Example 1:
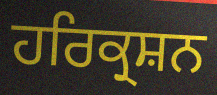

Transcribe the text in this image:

ਹਰਿਕ੍ਰਸ਼ਨ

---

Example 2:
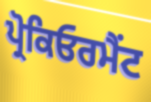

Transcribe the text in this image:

ਪ੍ਰੋਕਿਓਰਮੈਂਟ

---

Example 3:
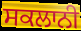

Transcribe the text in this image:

ਸਕਲਾਨੀ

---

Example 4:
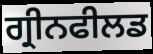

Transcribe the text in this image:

ਗ੍ਰੀਨਫੀਲਡ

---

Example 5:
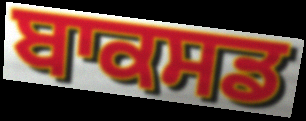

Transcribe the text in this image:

ਬਾਕਸਡ